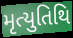
મૃત્યુતિથિ